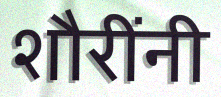
शौरींनी